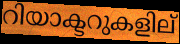
റിയാക്ടറുകളില്